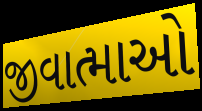
જીવાત્માઓ